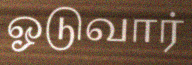
ஓடுவார்